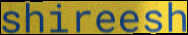
shireesh